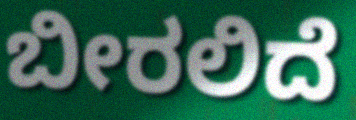
ಬೀರಲಿದೆ